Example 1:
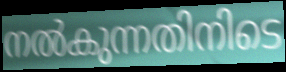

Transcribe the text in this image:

നൽകുന്നതിനിടെ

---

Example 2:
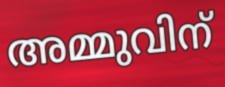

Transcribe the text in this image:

അമ്മുവിന്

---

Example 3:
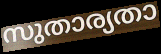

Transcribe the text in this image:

സുതാര്യതാ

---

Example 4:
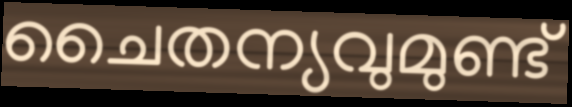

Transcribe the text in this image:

ചൈതന്യവുമുണ്ട്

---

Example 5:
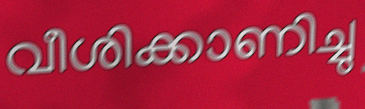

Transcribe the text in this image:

വീശിക്കാണിച്ചു